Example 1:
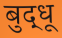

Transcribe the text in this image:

बुद्धू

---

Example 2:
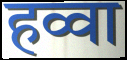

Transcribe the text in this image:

हव्वा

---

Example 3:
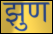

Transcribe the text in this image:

झुण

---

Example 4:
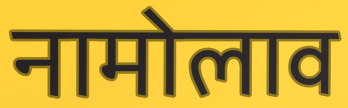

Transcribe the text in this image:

नामोलाव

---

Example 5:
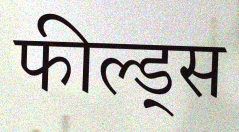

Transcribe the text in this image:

फील्ड्स